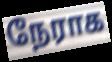
நேராக